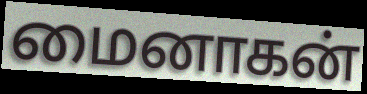
மைனாகன்